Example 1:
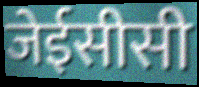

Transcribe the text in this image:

जेईसीसी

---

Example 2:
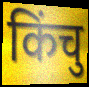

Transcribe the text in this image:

किंचु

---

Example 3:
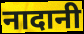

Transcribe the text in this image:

नादानी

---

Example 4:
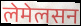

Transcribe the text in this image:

लेमेलसन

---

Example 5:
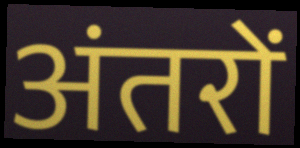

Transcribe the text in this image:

अंतरों